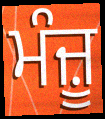
ਮੰਜ਼ੂ